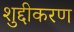
शुद्दीकरण